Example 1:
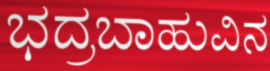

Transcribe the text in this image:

ಭದ್ರಬಾಹುವಿನ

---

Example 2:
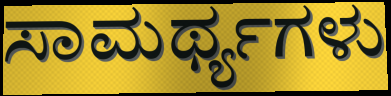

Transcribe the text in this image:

ಸಾಮರ್ಥ್ಯಗಳು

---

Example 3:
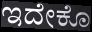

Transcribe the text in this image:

ಇದೇಕೊ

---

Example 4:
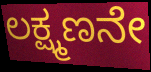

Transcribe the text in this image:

ಲಕ್ಷ್ಮಣನೇ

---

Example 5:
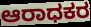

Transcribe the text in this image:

ಆರಾಧಕರ